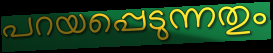
പറയപ്പെടുന്നതും